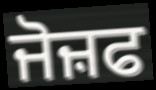
ਜੋਜ਼ਫ